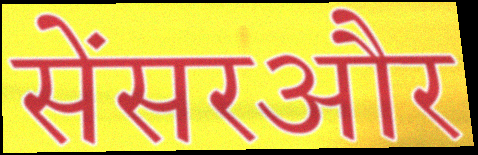
सेंसरऔर